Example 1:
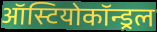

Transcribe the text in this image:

ऑस्टियोकॉन्ड्रल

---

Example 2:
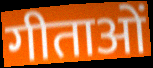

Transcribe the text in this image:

गीताओं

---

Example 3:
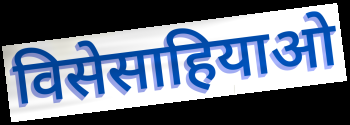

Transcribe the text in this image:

विसेसाहियाओ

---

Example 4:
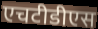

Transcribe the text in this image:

एचटीडीएस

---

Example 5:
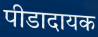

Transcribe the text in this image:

पीडादायक